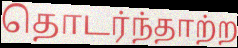
தொடர்ந்தாற்ற